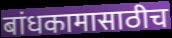
बांधकामासाठीच